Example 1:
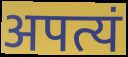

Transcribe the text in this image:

अपत्यं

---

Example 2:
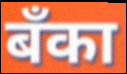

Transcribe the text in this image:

बँका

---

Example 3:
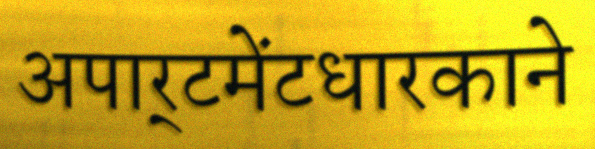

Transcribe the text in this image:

अपार्टमेंटधारकाने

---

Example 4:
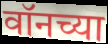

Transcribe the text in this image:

वॉनच्या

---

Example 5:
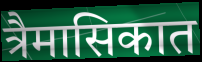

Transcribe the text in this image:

त्रैमासिकात